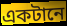
একটানে